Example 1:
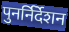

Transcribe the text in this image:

पुनर्निर्देशन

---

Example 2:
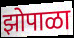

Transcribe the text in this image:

झोपाळा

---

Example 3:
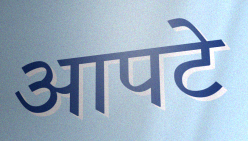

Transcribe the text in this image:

आपटे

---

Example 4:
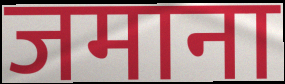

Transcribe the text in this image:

जमाना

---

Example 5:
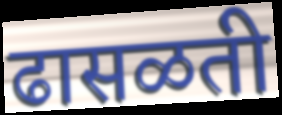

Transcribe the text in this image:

ढासळती